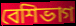
বেশিভাগ